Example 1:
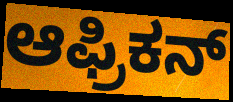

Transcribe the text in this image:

ಆಫ್ರಿಕನ್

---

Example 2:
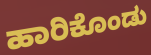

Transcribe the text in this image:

ಹಾರಿಕೊಂಡು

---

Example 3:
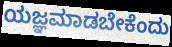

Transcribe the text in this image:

ಯಜ್ಞಮಾಡಬೇಕೆಂದು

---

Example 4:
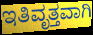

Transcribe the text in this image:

ಇತಿವೃತ್ತವಾಗಿ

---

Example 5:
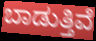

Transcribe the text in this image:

ಬಾಡುತ್ತಿವೆ